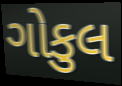
ગોકુલ